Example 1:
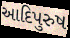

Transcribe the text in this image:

આદિપુરુષ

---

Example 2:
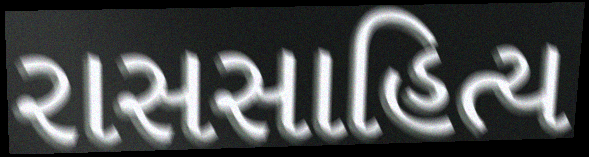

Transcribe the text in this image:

રાસસાહિત્ય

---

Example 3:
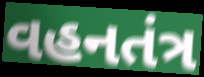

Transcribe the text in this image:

વહનતંત્ર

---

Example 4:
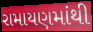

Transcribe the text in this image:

રામાયણમાંથી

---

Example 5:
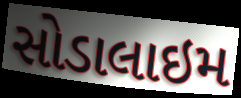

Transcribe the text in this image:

સોડાલાઇમ